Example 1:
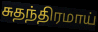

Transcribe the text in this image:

சுதந்திரமாய்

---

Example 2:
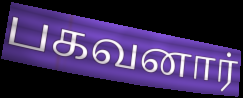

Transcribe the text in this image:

பகவனார்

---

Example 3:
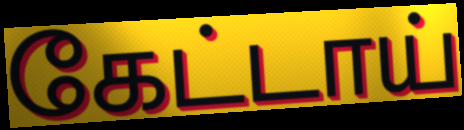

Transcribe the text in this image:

கேட்டாய்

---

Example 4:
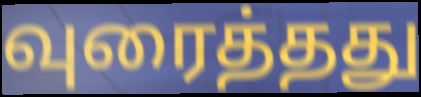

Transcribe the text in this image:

வுரைத்தது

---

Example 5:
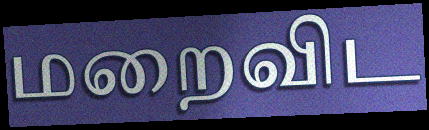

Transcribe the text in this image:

மறைவிட